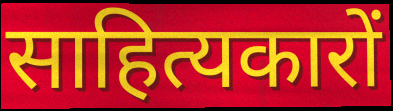
साहित्यकारों